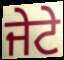
ਜੇਟੇ